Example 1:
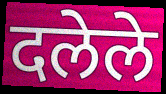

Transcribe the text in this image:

दलेले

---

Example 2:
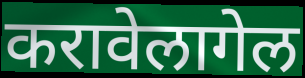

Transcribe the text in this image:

करावेलागेल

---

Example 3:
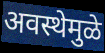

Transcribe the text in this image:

अवस्थेमुळे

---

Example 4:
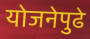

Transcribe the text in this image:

योजनेपुढे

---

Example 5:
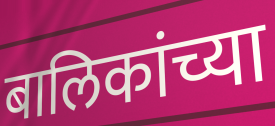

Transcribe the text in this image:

बालिकांच्या